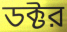
ডক্টর